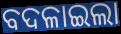
ବଦଳାଇଲା